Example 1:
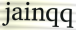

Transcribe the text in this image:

jainqq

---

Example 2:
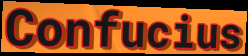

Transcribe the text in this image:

Confucius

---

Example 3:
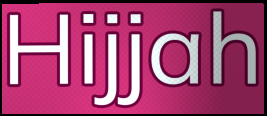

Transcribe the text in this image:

Hijjah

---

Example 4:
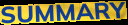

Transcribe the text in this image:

SUMMARY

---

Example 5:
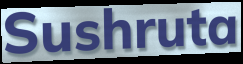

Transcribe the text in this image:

Sushruta